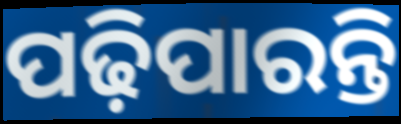
ପଢ଼ିପାରନ୍ତି